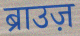
ब्राउज़